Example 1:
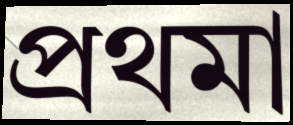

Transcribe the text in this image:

প্ৰথমা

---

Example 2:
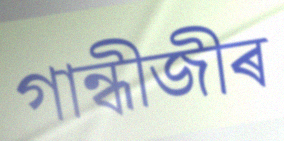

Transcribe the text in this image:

গান্ধীজীৰ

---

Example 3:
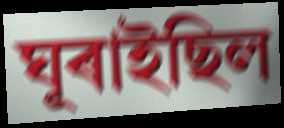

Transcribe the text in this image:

ঘূৰাইছিল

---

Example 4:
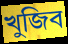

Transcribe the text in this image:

খুজিব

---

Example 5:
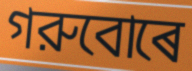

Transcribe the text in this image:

গৰুবোৰে